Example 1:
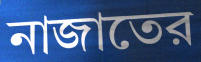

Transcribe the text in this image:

নাজাতের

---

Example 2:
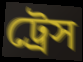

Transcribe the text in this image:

ট্রেস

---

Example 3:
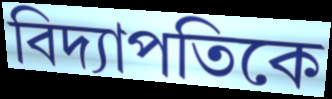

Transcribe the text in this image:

বিদ্যাপতিকে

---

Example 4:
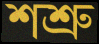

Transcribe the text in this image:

শশ্রু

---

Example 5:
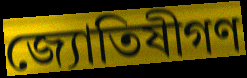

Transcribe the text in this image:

জ্যোতিষীগণ